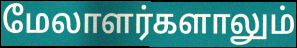
மேலாளர்களாலும்